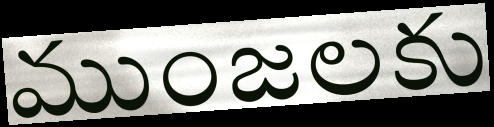
ముంజలకు